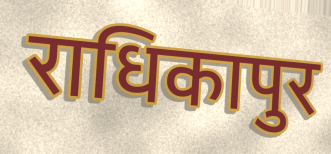
राधिकापुर